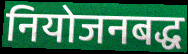
नियोजनबद्ध